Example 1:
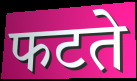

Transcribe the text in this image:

फटते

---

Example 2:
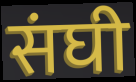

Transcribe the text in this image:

संघी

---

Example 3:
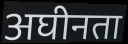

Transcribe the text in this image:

अघीनता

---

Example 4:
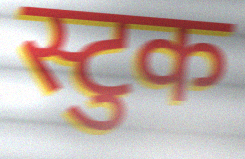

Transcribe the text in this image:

स्टुक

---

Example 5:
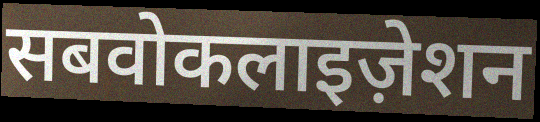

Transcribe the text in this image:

सबवोकलाइज़ेशन